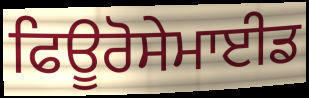
ਫਿਊਰੋਸੇਮਾਈਡ